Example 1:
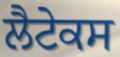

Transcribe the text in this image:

ਲੈਟੇਕਸ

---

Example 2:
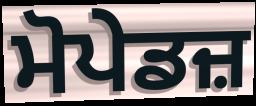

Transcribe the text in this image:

ਮੋਪੇਡਜ਼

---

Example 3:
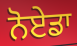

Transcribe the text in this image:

ਨੋਏਡਾ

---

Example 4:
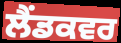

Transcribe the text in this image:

ਲੈਂਡਕਵਰ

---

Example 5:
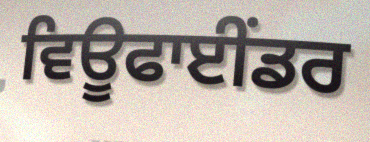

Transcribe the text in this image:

ਵਿਊਫਾਈਂਡਰ